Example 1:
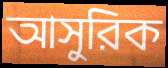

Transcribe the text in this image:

আসুরিক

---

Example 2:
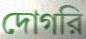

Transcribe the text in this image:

দোগরি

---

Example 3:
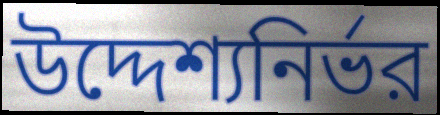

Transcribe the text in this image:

উদ্দেশ্যনির্ভর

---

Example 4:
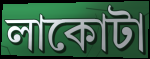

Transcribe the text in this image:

লাকোটা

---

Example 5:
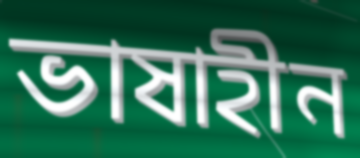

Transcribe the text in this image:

ভাষাহীন